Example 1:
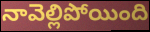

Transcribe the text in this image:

నావెల్లిపోయింది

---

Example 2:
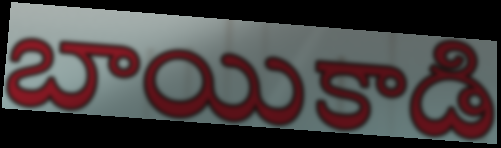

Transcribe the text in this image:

బాయికాడి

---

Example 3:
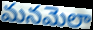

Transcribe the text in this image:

మనమెలా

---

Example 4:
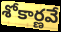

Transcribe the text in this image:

శోకార్ణవే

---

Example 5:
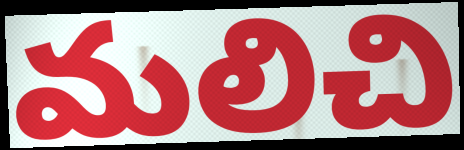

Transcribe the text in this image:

మలిచి